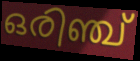
ഒരിഞ്ച്